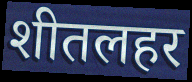
शीतलहर